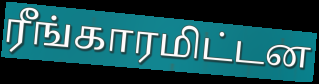
ரீங்காரமிட்டன